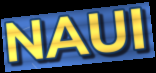
NAUI